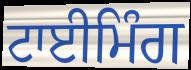
ਟਾਈਮਿੰਗ